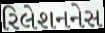
રિલેશનનેસ